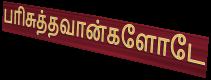
பரிசுத்தவான்களோடே